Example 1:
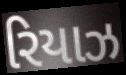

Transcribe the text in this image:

રિયાઝ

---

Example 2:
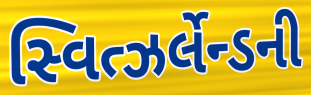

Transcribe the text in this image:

સ્વિત્ઝર્લેન્ડની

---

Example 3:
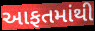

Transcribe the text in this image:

આફતમાંથી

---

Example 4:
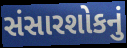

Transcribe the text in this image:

સંસારશોકનું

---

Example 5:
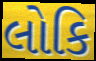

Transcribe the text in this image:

લોકિ